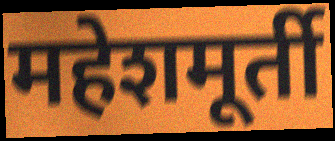
महेशमूर्ती